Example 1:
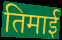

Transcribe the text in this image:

तिमाई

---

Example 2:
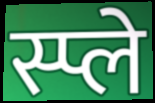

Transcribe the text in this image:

स्प्ले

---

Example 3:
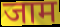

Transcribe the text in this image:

जाम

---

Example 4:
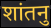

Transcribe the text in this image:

शांतनु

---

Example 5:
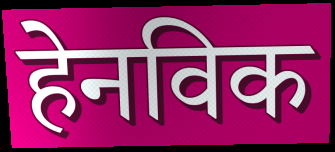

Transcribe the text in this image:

हेनविक